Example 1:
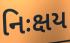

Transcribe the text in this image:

નિઃક્ષય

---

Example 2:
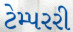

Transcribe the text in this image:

ટેમ્પરરી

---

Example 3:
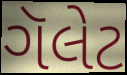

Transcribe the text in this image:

ગૅલેટ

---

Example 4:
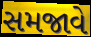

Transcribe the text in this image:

સમજાવે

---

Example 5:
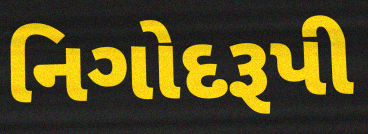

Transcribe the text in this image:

નિગોદરૂપી